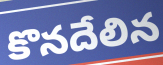
కొనదేలిన